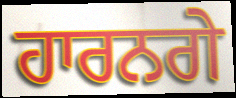
ਹਾਰਨਗੇ